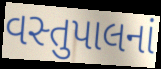
વસ્તુપાલનાં